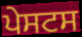
ਪੇਸਟਸ